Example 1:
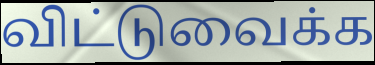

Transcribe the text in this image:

விட்டுவைக்க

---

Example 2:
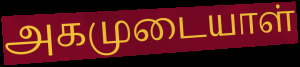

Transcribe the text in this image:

அகமுடையாள்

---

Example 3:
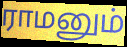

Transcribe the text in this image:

ராமனும்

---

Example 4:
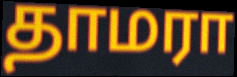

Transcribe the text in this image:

தாமரா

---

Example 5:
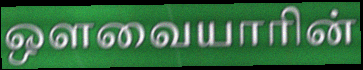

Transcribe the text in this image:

ஔவையாரின்